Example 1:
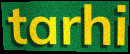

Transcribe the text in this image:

tarhi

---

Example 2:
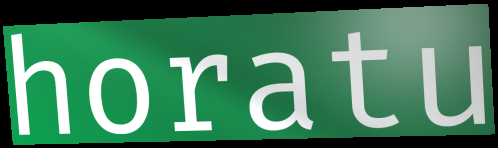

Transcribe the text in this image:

horatu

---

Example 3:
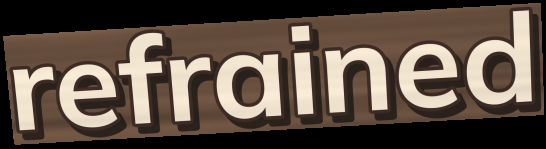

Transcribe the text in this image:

refrained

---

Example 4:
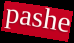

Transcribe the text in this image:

pashe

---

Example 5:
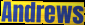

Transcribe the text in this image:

Andrews